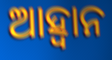
ଆହ୍ୱାନ